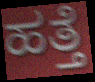
ಹತ್ತೆ